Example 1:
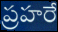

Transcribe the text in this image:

ప్రహరే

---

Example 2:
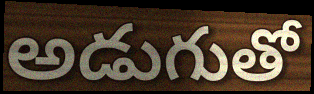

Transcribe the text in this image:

అడుగుతో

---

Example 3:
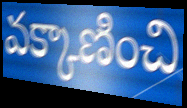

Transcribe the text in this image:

వక్కాణించి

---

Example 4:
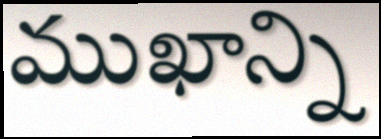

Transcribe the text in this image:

ముఖాన్ని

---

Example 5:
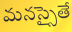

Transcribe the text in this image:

మనస్సైతే